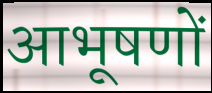
आभूषणों